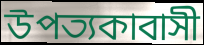
উপত্যকাবাসী